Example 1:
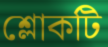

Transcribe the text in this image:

শ্লোকটি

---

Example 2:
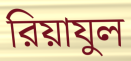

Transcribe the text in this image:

রিয়াযুল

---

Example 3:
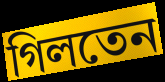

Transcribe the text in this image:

গিলতেন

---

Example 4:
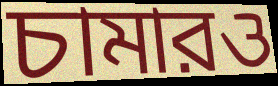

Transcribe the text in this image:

চামারও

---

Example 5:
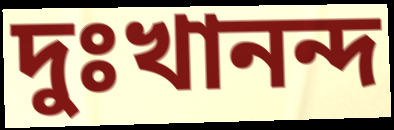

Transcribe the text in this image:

দুঃখানন্দ